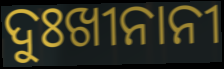
ଦୁଃଖୀନାନୀ